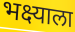
भक्ष्याला